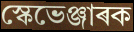
স্কেভেঞ্জাৰক